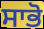
ਸਾਭੋ